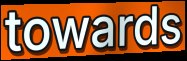
towards